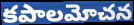
కపాలమోచన